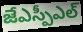
జేఎస్పీఎల్